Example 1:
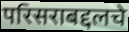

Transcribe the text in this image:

परिसराबद्दलचे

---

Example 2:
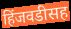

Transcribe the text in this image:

हिंजवडीसह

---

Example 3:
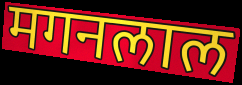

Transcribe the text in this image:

मगनलाल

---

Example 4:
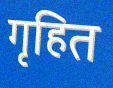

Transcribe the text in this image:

गृहित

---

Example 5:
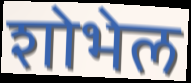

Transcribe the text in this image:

शोभेल